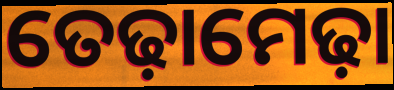
ତେଢ଼ାମେଢ଼ା